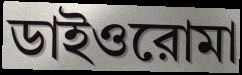
ডাইওরোমা